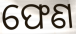
ଫେଣ